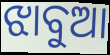
ଝାବୁଆ